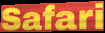
Safari